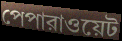
পেপারাওয়েট